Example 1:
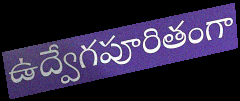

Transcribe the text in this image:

ఉద్వేగపూరితంగా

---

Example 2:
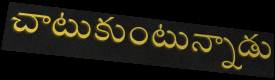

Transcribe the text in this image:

చాటుకుంటున్నాడు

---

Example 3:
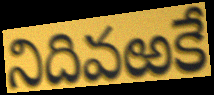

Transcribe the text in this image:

నిదివఱకే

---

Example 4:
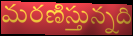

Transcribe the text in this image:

మరణిస్తున్నది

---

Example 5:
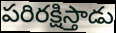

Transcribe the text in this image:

పరిరక్షిస్తాడు